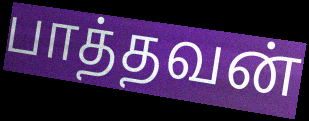
பாத்தவன்